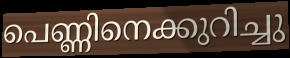
പെണ്ണിനെക്കുറിച്ചു